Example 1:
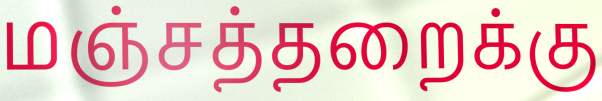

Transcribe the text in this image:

மஞ்சத்தறைக்கு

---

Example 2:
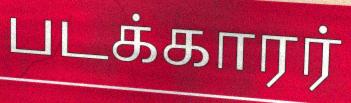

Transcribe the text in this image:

படக்காரர்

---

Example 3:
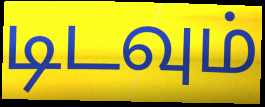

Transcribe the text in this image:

டிடவும்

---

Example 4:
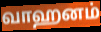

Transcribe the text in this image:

வாஹனம்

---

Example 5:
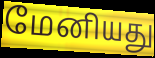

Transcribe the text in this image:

மேனியது